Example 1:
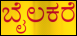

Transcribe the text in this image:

ಬೈಲಕರೆ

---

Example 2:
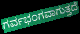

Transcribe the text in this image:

ಗರ್ವಭಂಗವಾಗುತ್ತದೆ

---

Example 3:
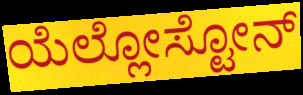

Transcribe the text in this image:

ಯೆಲ್ಲೋಸ್ಟೋನ್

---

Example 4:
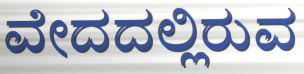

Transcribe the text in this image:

ವೇದದಲ್ಲಿರುವ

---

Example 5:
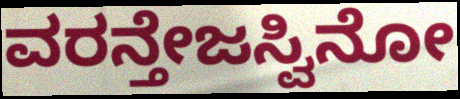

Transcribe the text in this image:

ವರನ್ತೇಜಸ್ವಿನೋ